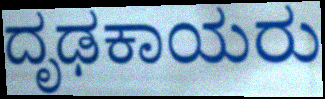
ದೃಢಕಾಯರು